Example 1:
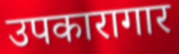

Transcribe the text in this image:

उपकारागार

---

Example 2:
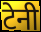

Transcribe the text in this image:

टेनी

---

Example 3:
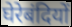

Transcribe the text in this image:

घेरेबंदियों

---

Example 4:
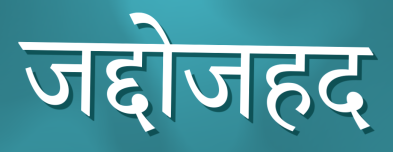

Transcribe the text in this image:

जद्दोजहद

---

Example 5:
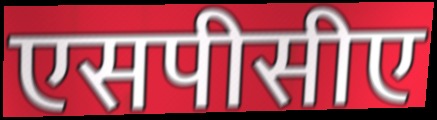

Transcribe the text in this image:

एसपीसीए